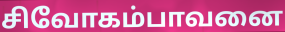
சிவோகம்பாவனை